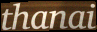
thanai